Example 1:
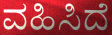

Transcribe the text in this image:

ವಹಿಸಿದೆ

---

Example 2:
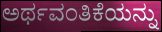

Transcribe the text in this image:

ಅರ್ಥವಂತಿಕೆಯನ್ನು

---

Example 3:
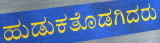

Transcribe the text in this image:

ಹುಡುಕತೊಡಗಿದರು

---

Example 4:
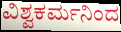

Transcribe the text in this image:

ವಿಶ್ವಕರ್ಮನಿಂದ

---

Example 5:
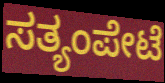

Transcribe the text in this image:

ಸತ್ಯಂಪೇಟೆ